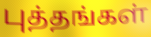
புத்தங்கள்